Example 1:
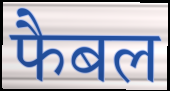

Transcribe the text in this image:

फैबल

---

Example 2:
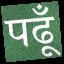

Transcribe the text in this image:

पढूँ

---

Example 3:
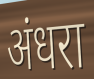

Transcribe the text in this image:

अंधरा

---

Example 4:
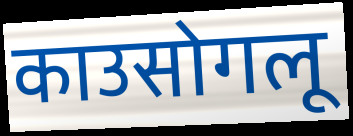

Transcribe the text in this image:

काउसोगलू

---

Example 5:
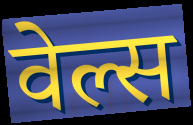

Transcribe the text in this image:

वेल्स